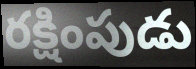
రక్షింపుడు